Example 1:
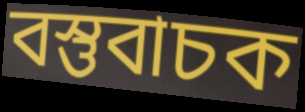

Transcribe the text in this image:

বস্তুবাচক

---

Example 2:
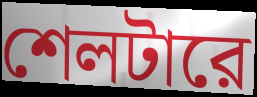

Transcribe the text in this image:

শেলটারে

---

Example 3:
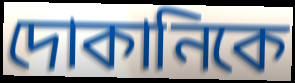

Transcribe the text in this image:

দোকানিকে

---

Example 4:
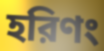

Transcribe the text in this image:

হরিণং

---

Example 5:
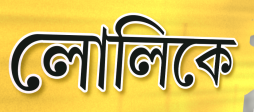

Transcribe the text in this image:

লোলিকে